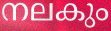
നലകും